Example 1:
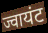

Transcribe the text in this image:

ज्वायंट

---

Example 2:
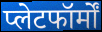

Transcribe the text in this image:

प्लेटफॉर्मों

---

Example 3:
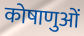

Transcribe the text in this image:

कोषाणुओं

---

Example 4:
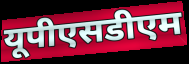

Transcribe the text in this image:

यूपीएसडीएम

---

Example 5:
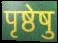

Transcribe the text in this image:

पृष्ठेषु